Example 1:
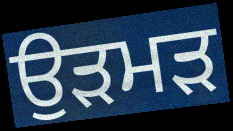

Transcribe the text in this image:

ਉੜਮੜ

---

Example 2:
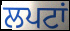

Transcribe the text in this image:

ਲਪਟਾਂ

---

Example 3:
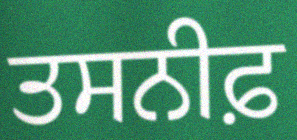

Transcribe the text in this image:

ਤਸਨੀਫ਼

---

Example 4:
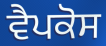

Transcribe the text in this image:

ਵੈਪਕੋਸ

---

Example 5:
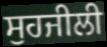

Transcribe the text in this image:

ਸੁਹਜੀਲੀ